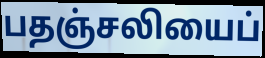
பதஞ்சலியைப்